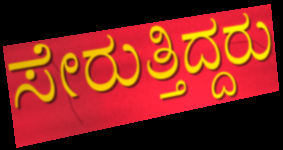
ಸೇರುತ್ತಿದ್ದರು